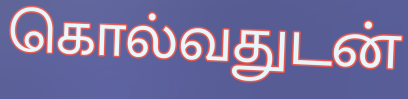
கொல்வதுடன்